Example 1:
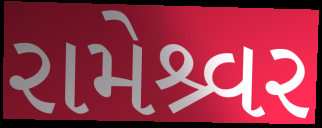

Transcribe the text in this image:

રામેશ્ર્વર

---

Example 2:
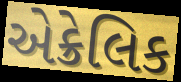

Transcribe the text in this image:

એક્રેલિક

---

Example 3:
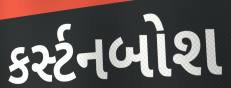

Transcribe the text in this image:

કર્સ્ટનબોશ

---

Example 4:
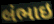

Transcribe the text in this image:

લંભાઇ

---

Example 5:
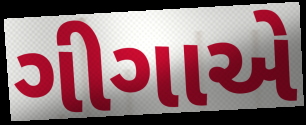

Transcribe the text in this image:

ગીગાએ